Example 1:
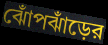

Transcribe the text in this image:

ঝোঁপঝাঁড়ের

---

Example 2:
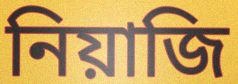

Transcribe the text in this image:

নিয়াজি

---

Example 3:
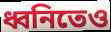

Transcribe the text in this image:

ধ্বনিতেও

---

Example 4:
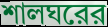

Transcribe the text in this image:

শালঘরের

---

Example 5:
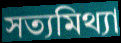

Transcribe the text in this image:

সত্যমিথ্যা